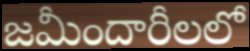
జమీందారీలలో